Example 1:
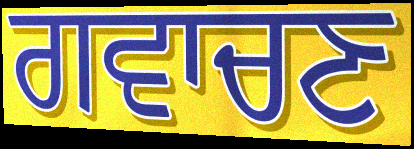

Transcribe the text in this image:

ਗਵਾਚਣ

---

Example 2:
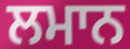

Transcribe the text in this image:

ਲਮਾਨ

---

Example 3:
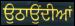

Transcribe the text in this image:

ਉਠਾਉਂਦੀਆਂ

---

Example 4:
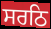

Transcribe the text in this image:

ਸਰਠਿ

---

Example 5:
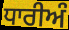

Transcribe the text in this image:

ਧਾਰੀਅੰ